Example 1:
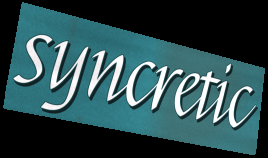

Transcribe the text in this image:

syncretic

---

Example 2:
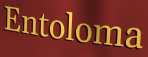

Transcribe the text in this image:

Entoloma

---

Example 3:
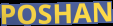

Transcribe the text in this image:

POSHAN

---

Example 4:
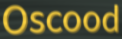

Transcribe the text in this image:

Oscood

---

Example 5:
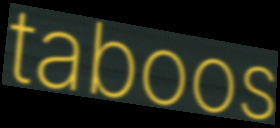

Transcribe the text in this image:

taboos